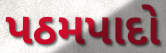
પઠમપાદો